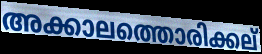
അക്കാലത്തൊരിക്കല്